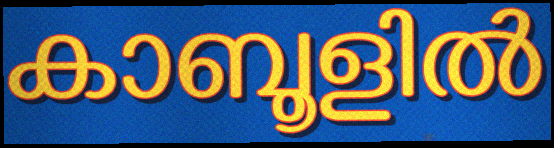
കാബൂളിൽ